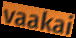
vaakai